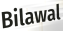
Bilawal